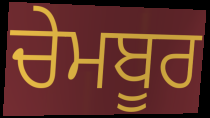
ਚੇਮਬੂਰ